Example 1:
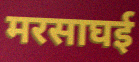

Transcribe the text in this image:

मरसाघई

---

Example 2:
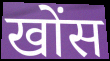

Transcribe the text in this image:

खोंस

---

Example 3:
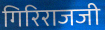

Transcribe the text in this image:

गिरिराजजी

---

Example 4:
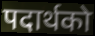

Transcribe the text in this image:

पदार्थको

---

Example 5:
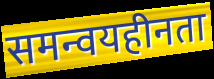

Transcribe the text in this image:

समन्वयहीनता